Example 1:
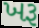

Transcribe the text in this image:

ખરૂ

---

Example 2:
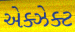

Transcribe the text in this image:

એક્ઝેક્ટ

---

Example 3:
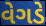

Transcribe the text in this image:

વેગડે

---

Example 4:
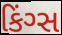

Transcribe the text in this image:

કિંગ્સ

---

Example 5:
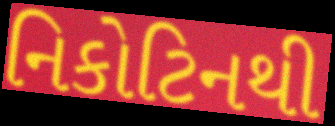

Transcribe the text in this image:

નિકોટિનથી